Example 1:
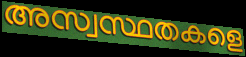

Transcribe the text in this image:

അസ്വസ്ഥതകളെ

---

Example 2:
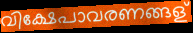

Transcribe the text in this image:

വിക്ഷേപാവരണങ്ങള്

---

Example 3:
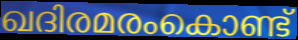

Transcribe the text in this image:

ഖദിരമരംകൊണ്ട്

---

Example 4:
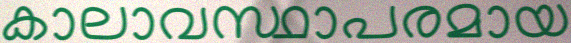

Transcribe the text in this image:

കാലാവസ്ഥാപരമായ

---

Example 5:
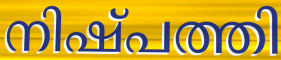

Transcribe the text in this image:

നിഷ്പത്തി